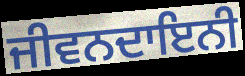
ਜੀਵਨਦਾਇਨੀ